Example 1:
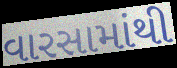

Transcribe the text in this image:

વારસામાંથી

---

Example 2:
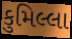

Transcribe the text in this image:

કુમિલ્લા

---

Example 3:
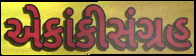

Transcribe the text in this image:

એકાંકીસંગ્રહ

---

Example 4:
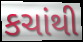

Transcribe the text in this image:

કચાંથી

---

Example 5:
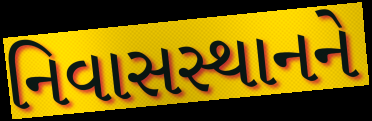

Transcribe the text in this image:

નિવાસસ્થાનને